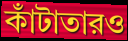
কাঁটাতারও